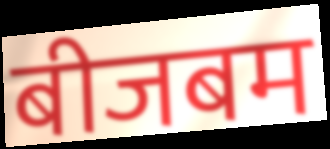
बीजबम